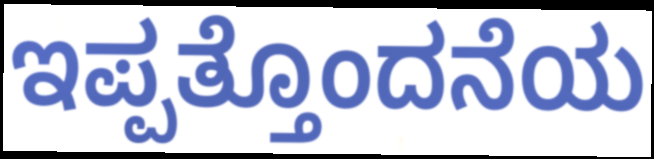
ಇಪ್ಪತ್ತೊಂದನೆಯ